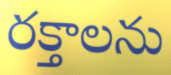
రక్తాలను